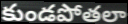
కుండపోతలా